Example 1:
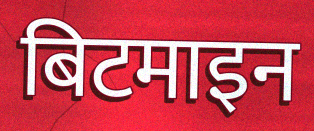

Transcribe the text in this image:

बिटमाइन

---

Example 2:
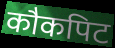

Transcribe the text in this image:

कौकपिट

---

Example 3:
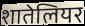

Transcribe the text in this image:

शातेलियर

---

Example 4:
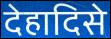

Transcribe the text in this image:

देहादिसे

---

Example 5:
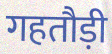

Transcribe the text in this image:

गहतौड़ी